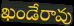
ఖండేరావు